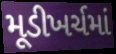
મૂડીખર્ચમાં